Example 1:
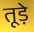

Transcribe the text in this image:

तूड़े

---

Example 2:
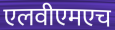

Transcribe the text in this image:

एलवीएमएच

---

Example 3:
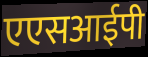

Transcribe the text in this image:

एएसआईपी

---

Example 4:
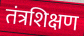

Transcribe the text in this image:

तंत्रशिक्षण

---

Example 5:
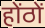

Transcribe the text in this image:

होंठों